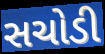
સચોડી